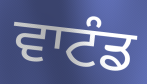
ਵਾਟੰਡ